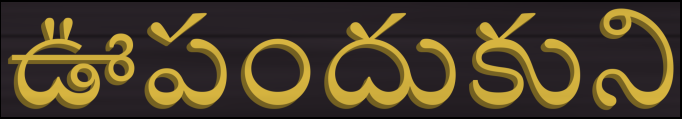
ఊపందుకుని